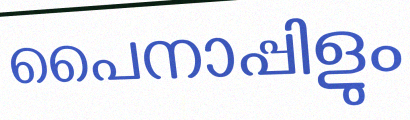
പൈനാപ്പിളും